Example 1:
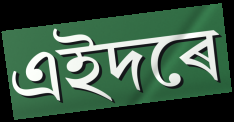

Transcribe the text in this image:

এইদৰে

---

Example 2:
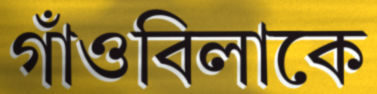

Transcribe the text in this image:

গাঁওবিলাকে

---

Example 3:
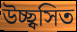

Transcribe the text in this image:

উচ্ছ্বসিত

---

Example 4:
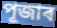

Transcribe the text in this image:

পূজাৰ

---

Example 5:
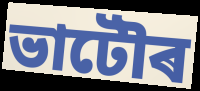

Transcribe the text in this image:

ভাটৌৰ